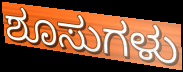
ಶೂಸುಗಳು